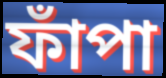
ফাঁপা